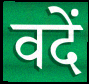
वदें